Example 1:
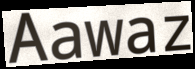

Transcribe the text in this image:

Aawaz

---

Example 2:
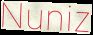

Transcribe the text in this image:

Nuniz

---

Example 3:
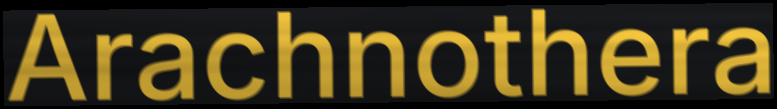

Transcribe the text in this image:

Arachnothera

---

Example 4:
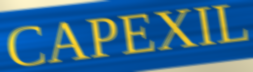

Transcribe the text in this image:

CAPEXIL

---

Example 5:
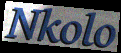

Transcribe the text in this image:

Nkolo